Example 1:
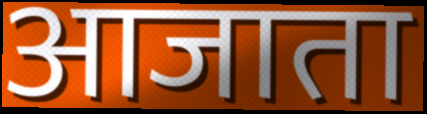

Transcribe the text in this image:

आजाता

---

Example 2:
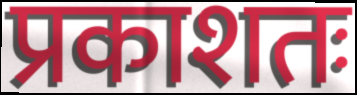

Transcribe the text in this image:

प्रकाशतः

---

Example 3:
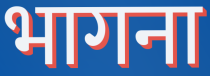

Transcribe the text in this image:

भागना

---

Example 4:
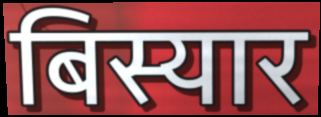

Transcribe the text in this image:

बिस्यार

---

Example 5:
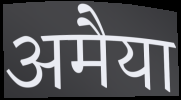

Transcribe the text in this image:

अमैया